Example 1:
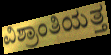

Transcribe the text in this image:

ವಿಶ್ರಾಂತಿಯತ್ತ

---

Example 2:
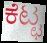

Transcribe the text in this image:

ಕೆಟ್ಟ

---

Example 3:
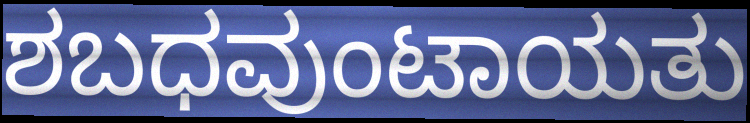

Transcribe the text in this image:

ಶಬಧವುಂಟಾಯತು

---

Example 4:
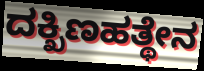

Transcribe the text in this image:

ದಕ್ಖಿಣಹತ್ಥೇನ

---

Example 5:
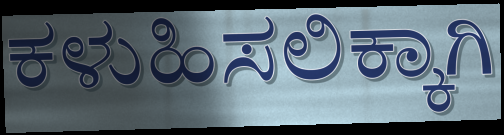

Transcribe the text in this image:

ಕಳುಹಿಸಲಿಕ್ಕಾಗಿ